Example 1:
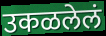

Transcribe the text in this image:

उकळलेलं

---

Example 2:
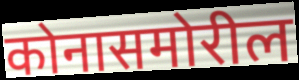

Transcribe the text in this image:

कोनासमोरील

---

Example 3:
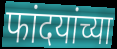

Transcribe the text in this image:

फांदयांच्या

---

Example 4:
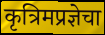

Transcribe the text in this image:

कृत्रिमप्रज्ञेचा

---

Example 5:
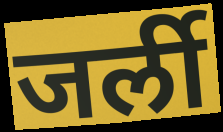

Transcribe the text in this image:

जर्ली